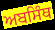
ਅਬਸਿੰਥ